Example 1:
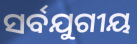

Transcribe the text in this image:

ସର୍ବଯୁଗୀୟ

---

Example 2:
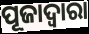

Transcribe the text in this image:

ପୂଜାଦ୍ୱାରା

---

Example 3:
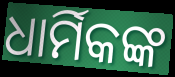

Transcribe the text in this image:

ଧାର୍ମିକଙ୍କ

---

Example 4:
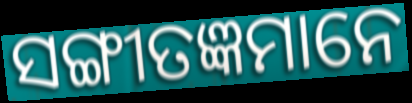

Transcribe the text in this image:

ସଙ୍ଗୀତଜ୍ଞମାନେ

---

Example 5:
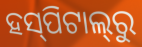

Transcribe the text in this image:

ହସ୍‌ପିଟାଲ୍‌ରୁ